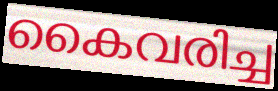
കൈവരിച്ച